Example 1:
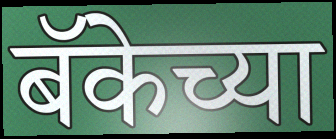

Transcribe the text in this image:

बॅकेच्या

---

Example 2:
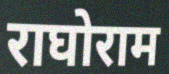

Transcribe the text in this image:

राघोराम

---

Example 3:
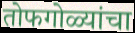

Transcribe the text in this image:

तोफगोळ्यांचा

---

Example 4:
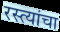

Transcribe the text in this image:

रस्त्यांचा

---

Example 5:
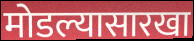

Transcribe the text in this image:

मोडल्यासारखा